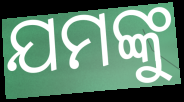
ଯମଙ୍କୁ